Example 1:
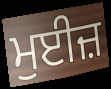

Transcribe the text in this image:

ਮੁਈਜ਼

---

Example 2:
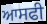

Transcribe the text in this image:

ਆਸਫੀ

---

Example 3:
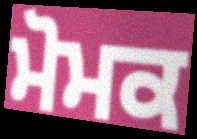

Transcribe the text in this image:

ਮੋਮਕ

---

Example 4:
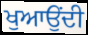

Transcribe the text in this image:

ਖੁਆਉਂਦੀ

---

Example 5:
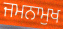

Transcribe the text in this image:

ਜਮਨਾਮੁਖ